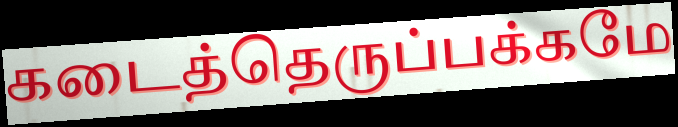
கடைத்தெருப்பக்கமே